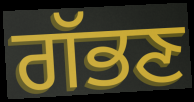
ਗੱਭਣ